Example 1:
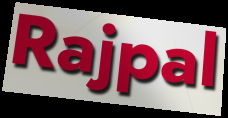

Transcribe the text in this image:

Rajpal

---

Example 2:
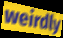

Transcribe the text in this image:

weirdly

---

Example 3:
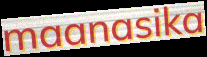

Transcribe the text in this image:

maanasika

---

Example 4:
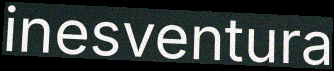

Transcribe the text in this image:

inesventura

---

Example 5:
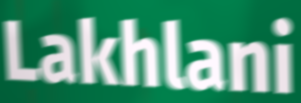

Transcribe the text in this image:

Lakhlani